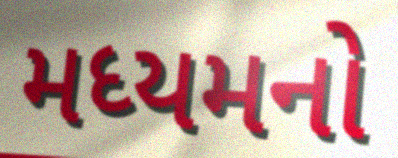
મધ્યમનો